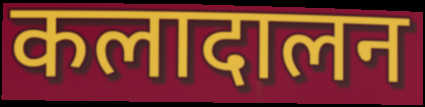
कलादालन